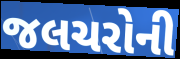
જલચરોની